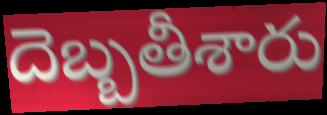
దెబ్బతీశారు